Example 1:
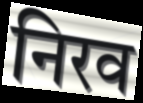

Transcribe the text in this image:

निरव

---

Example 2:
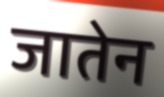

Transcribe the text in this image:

जातेन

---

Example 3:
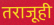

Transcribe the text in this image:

तराजूही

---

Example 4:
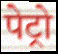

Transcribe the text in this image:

पेट्रो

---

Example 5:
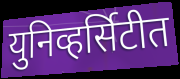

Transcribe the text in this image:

युनिव्हर्सिटीत